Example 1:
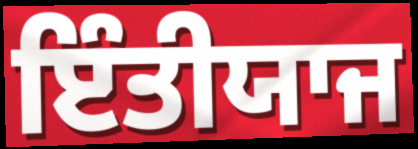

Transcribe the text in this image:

ਇੰਤੀਯਾਜ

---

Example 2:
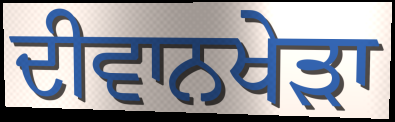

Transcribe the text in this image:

ਦੀਵਾਨਖੇੜਾ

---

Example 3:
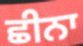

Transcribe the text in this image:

ਛੀਨਾ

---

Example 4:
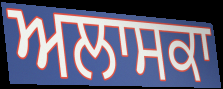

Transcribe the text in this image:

ਅਲਾਸਕਾ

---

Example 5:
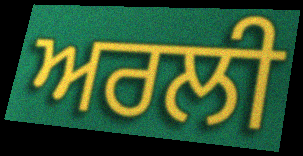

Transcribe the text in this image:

ਅਰਲੀ